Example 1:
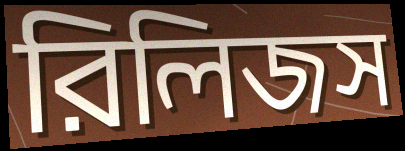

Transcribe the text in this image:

রিলিজস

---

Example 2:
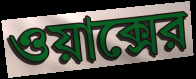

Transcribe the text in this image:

ওয়াক্সের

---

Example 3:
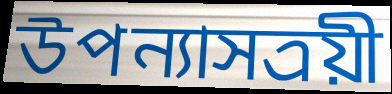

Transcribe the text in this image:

উপন্যাসত্রয়ী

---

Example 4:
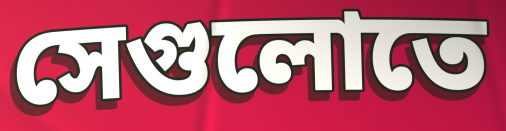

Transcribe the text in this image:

সেগুলোতে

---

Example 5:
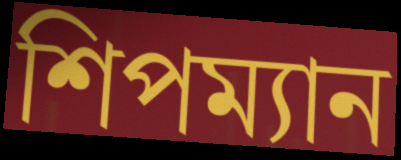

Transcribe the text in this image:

শিপম্যান